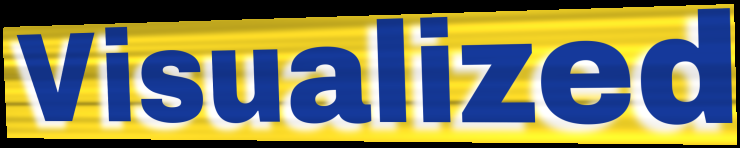
Visualized